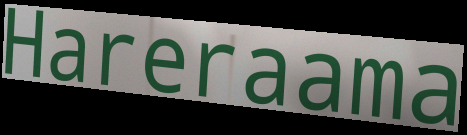
Hareraama